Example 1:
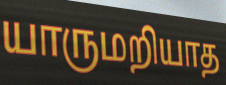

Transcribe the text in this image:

யாருமறியாத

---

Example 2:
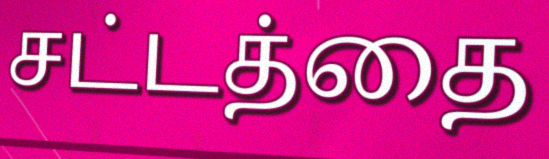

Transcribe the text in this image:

சட்டத்தை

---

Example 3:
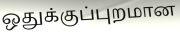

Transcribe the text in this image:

ஒதுக்குப்புறமான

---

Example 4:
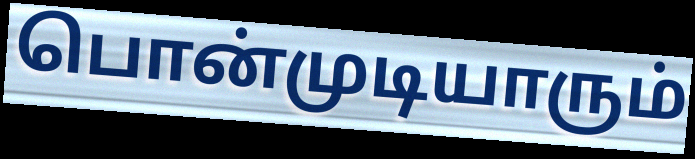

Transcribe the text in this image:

பொன்முடியாரும்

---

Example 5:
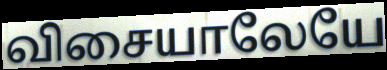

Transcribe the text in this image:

விசையாலேயே